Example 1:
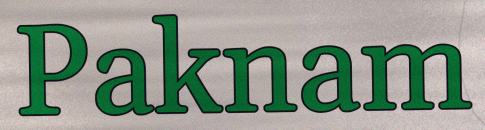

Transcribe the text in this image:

Paknam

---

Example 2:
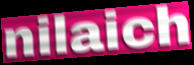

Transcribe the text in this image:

nilaich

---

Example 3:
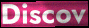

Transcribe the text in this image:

Discov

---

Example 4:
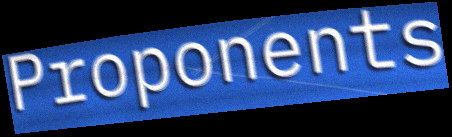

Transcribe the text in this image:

Proponents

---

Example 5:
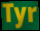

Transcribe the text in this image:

Tyr